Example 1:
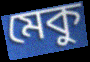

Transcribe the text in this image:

মেকু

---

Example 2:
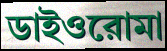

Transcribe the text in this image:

ডাইওরোমা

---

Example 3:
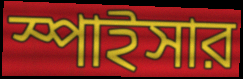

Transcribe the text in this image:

স্পাইসার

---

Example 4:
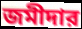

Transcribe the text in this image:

জমীদার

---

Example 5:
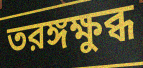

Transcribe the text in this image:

তরঙ্গক্ষুব্ধ